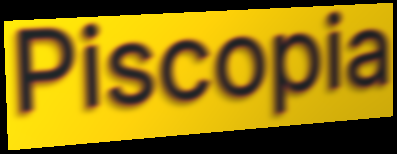
Piscopia